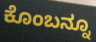
ಕೊಂಬನ್ನೂ